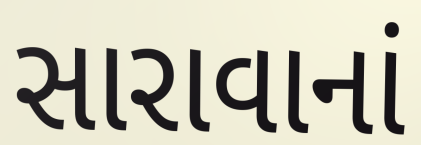
સારાવાનાં